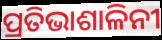
ପ୍ରତିଭାଶାଳିନୀ